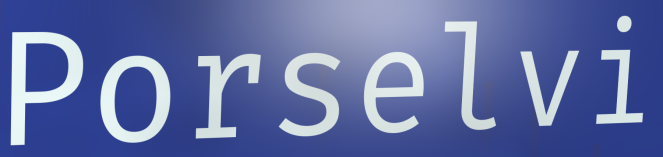
Porselvi